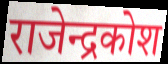
राजेन्द्रकोश